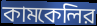
কামকেলির